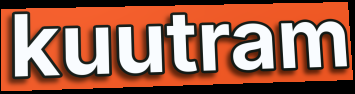
kuutram